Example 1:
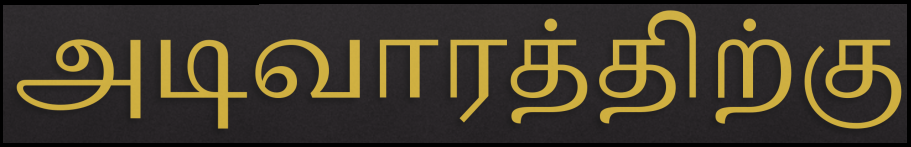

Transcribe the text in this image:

அடிவாரத்திற்கு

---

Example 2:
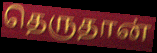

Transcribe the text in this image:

தெருதான்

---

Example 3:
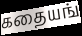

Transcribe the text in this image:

கதையங்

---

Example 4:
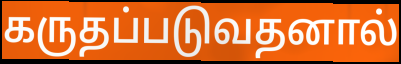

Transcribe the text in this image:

கருதப்படுவதனால்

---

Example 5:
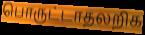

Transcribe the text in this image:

பொருட்டாதலறிக